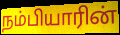
நம்பியாரின்